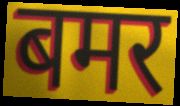
बमर